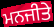
ਮਨਜੀਤੇ